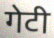
गेटी